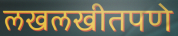
लखलखीतपणे